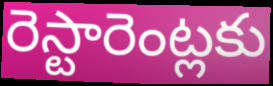
రెస్టారెంట్లకు